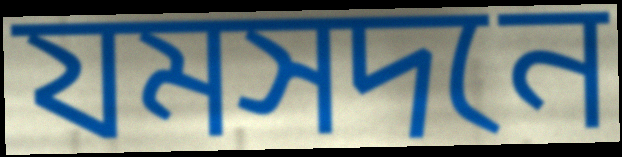
যমসদনে